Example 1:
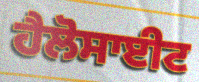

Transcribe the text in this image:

ਹੈਲੋਸਾਈਟ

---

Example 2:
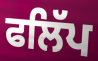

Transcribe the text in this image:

ਫਲਿੱਪ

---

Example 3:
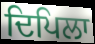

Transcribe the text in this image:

ਦਿਪਿਲਾ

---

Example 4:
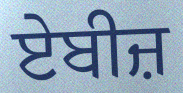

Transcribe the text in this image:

ਏਬੀਜ਼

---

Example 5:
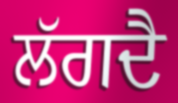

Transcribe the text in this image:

ਲੱਗਦੈ